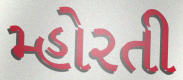
મ્હોરતી